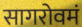
सागरोवमं